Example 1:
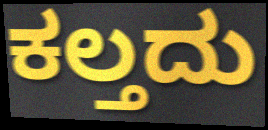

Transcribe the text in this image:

ಕಲ್ತದು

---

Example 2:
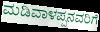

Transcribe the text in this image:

ಮಡಿವಾಳಪ್ಪನವರಿಗೆ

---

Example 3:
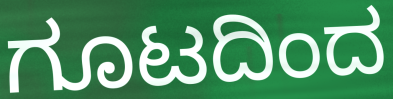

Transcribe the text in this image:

ಗೂಟದಿಂದ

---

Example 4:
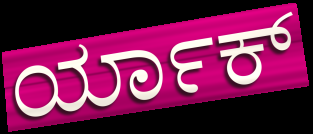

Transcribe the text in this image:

ರ್ಯಾಕ್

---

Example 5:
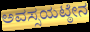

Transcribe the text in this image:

ಅವಸ್ಸಯಟ್ಠೇನ